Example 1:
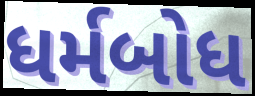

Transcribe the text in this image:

ધર્મબોધ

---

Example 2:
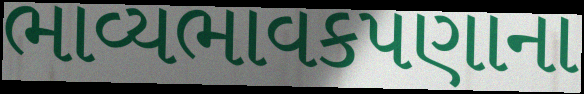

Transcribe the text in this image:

ભાવ્યભાવકપણાના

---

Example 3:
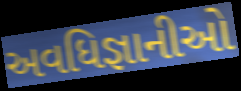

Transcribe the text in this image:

અવધિજ્ઞાનીઓ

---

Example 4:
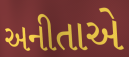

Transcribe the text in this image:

અનીતાએ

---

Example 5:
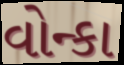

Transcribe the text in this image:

વોન્કા